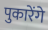
पुकारेंगे